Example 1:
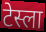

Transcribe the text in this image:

टेस्ला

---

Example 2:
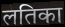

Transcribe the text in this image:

लतिका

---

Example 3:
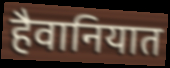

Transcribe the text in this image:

हैवानियात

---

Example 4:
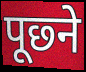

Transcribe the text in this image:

पूछ्ने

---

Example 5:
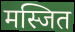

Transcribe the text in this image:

मस्जित